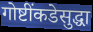
गोष्टींकडेसुद्धा